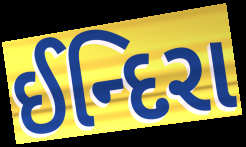
ઈન્દિરા